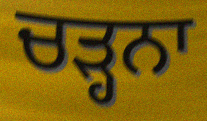
ਚੜ੍ਹਨਾ